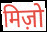
मिज़ो